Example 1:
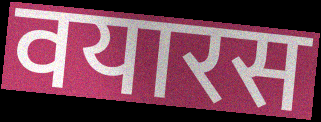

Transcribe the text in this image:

वयारस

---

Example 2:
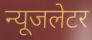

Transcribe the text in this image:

न्यूजलेटर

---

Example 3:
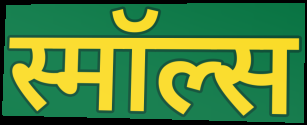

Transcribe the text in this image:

स्मॉल्स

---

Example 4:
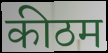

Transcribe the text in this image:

कीठम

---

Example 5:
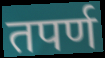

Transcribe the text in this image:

तपर्ण